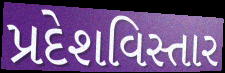
પ્રદેશવિસ્તાર